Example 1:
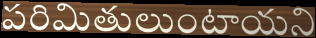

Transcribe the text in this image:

పరిమితులుంటాయని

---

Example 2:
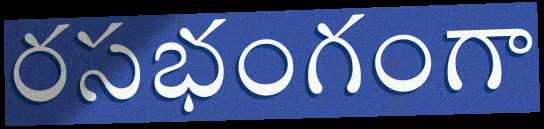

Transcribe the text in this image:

రసభంగంగా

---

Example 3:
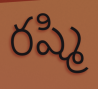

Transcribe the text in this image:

రష్మి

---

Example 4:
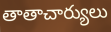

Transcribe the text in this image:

తాతాచార్యులు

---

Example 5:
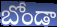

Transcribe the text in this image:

బోండా